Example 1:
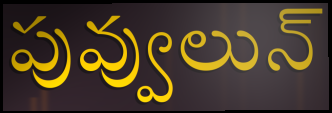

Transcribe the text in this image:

పువ్వులున్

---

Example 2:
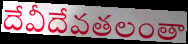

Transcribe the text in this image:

దేవీదేవతలంతా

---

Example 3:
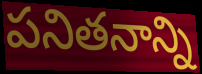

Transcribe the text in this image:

పనితనాన్ని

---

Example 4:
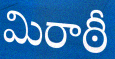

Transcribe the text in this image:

మిరాఠీ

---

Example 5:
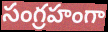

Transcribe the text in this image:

సంగ్రహంగా